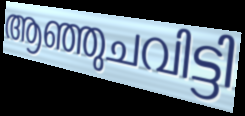
ആഞ്ഞുചവിട്ടി